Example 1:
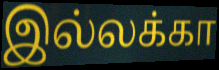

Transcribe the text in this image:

இல்லக்கா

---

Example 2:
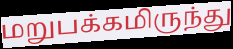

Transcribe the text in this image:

மறுபக்கமிருந்து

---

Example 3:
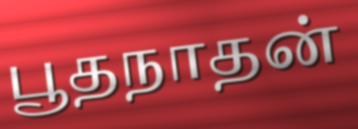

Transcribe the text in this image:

பூதநாதன்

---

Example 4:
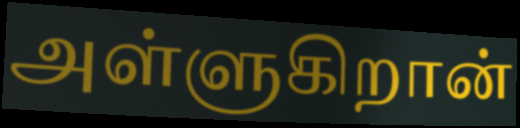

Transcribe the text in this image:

அள்ளுகிறான்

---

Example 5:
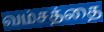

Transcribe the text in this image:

வம்சத்தை